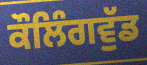
ਕੌਲਿੰਗਵੁੱਡ